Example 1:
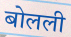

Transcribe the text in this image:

बोलली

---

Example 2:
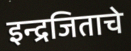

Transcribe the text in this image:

इन्द्रजिताचे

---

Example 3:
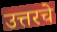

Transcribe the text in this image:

उत्तरचे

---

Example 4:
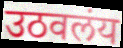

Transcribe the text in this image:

उठवलंय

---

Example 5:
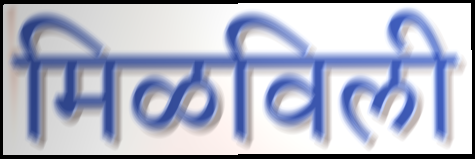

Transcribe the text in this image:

मिळविली